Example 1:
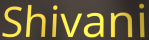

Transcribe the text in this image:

Shivani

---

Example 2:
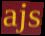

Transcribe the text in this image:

ajs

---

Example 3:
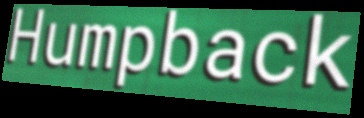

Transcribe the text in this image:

Humpback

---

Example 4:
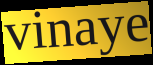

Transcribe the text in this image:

vinaye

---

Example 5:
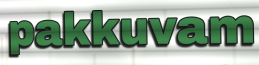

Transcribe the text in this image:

pakkuvam